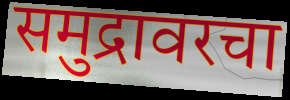
समुद्रावरचा